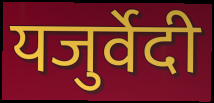
यजुर्वेदी